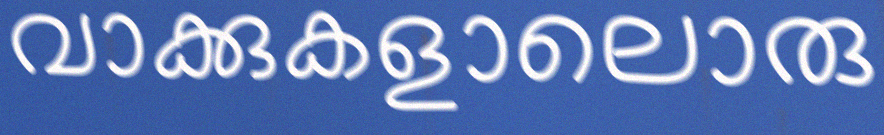
വാക്കുകളാലൊരു